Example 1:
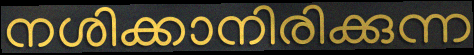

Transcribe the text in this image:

നശിക്കാനിരിക്കുന്ന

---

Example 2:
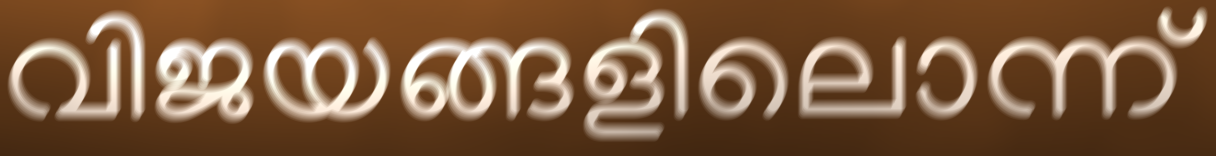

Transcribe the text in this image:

വിജയങ്ങളിലൊന്ന്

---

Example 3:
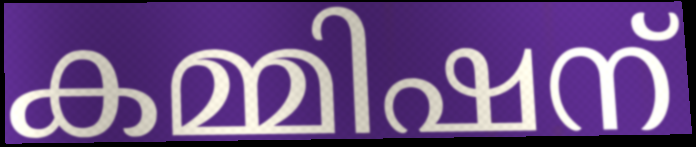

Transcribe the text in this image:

കമ്മിഷന്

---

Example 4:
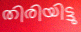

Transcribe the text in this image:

തിരിയിട്ടു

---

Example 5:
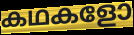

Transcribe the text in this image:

കഥകളോ